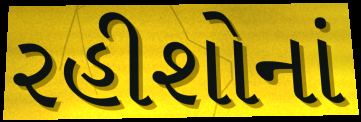
રહીશોનાં